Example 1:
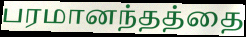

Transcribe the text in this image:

பரமானந்தத்தை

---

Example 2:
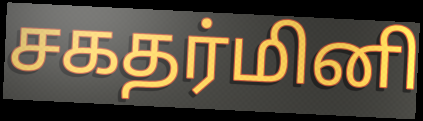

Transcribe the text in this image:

சகதர்மினி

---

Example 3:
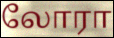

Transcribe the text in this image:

லோரா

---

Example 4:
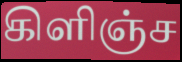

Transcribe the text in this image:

கிளிஞ்ச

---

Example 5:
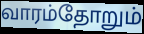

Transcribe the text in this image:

வாரம்தோறும்